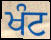
ਖੰਟ